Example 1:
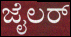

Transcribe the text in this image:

ಜೈಲರ್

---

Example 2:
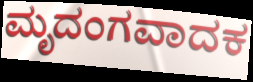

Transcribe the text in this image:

ಮೃದಂಗವಾದಕ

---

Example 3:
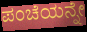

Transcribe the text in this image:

ಪಂಚೆಯನ್ನೇ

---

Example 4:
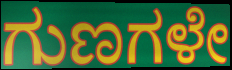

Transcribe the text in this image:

ಗುಣಗಳೇ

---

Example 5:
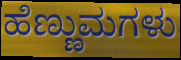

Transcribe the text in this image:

ಹೆಣ್ಣುಮಗಳು